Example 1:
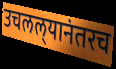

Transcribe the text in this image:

उचलल्यानंतरच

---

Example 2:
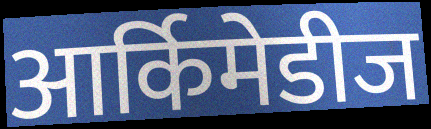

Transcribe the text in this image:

आर्किमेडीज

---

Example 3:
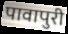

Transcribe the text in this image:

पावापुरी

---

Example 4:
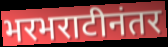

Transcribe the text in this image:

भरभराटीनंतर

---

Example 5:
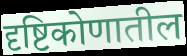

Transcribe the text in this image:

दृष्टिकोणातील